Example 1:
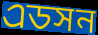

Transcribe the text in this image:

এডসন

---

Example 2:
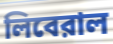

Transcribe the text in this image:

লিবেরাল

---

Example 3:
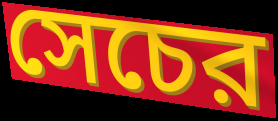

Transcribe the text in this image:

সেচের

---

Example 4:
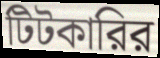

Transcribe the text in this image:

টিটকারির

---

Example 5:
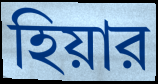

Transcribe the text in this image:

হিয়ার